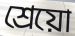
শ্রেয়ো